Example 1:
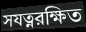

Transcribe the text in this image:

সযত্নরক্ষিত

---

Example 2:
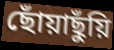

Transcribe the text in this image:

ছোঁয়াছুঁয়ি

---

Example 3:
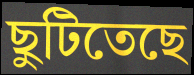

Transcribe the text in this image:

ছুটিতেছে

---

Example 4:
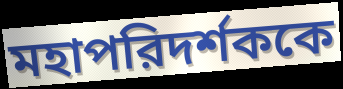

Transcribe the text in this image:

মহাপরিদর্শককে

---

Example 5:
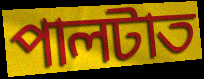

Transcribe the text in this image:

পালটাত